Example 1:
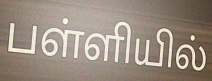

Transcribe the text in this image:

பள்ளியில்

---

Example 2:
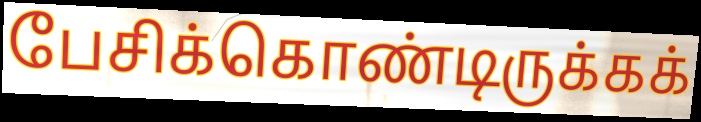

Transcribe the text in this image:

பேசிக்கொண்டிருக்கக்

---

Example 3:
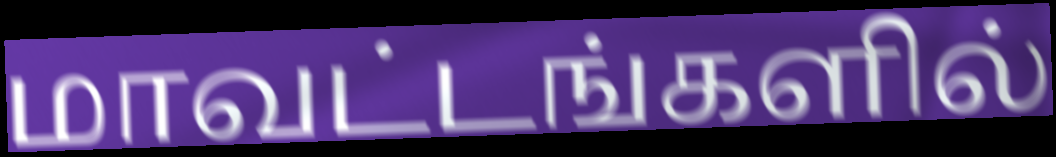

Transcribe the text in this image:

மாவட்டங்களில்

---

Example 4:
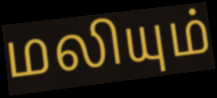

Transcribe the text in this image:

மலியும்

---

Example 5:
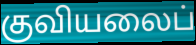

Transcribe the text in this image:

குவியலைப்